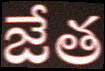
జేత